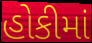
હોકીમાં